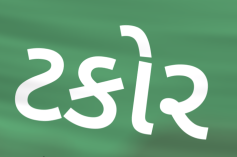
ટકોર